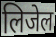
लिजेल